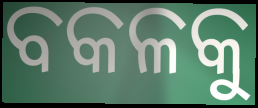
ବକଳକୁ